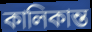
কালিকান্ত